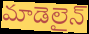
మాడెలైన్